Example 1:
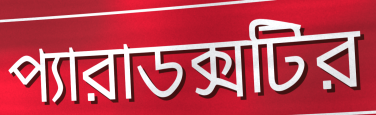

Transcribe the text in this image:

প্যারাডক্সটির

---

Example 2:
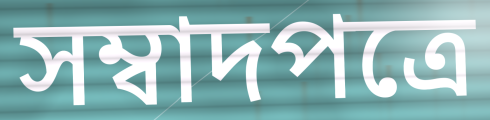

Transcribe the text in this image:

সম্বাদপত্রে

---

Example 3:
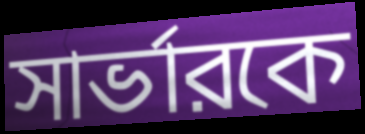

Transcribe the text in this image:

সার্ভারকে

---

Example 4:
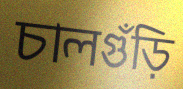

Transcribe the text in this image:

চালগুঁড়ি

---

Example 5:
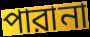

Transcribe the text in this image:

পারানা